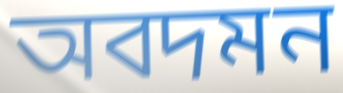
অবদমন